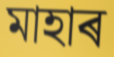
মাহাৰ